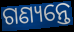
ଗଣ୍ୟନ୍ତେ